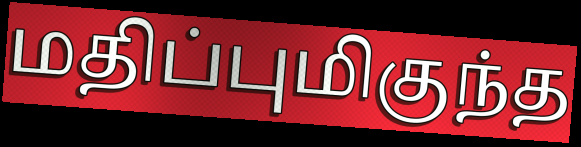
மதிப்புமிகுந்த